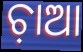
ଚ଼ାଆ